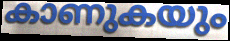
കാണുകയും